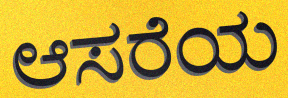
ಆಸರೆಯ